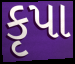
કૃપા